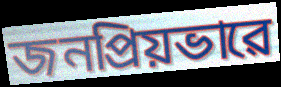
জনপ্ৰিয়ভাৱে